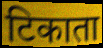
टिकाता